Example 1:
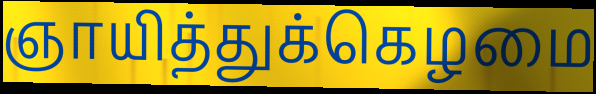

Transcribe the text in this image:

ஞாயித்துக்கெழமை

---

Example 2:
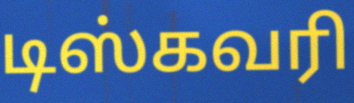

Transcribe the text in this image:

டிஸ்கவரி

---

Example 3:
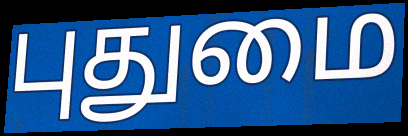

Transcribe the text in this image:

புதுமை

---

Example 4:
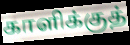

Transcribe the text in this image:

காளிக்குத்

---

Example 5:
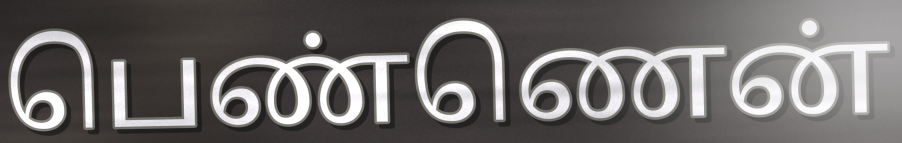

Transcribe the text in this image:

பெண்ணென்